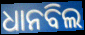
ଧାନବିଲ